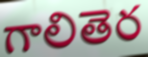
గాలితెర